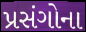
પ્રસંગોના